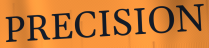
PRECISION